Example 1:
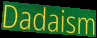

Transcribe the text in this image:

Dadaism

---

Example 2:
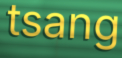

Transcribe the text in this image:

tsang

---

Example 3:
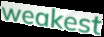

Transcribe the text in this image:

weakest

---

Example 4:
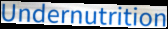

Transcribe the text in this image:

Undernutrition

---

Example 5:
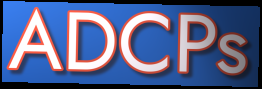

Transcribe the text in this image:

ADCPs